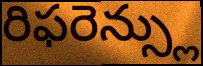
రిఫరెన్స్లు